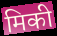
मिकी